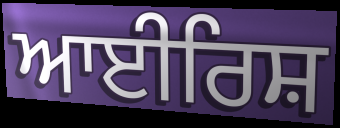
ਆਈਰਿਸ਼